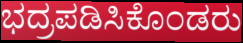
ಭದ್ರಪಡಿಸಿಕೊಂಡರು